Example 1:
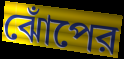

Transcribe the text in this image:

ঝোঁপের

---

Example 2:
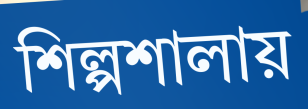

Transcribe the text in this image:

শিল্পশালায়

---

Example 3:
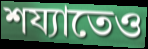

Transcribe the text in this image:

শয্যাতেও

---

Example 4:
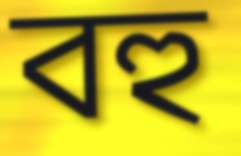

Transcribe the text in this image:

বহু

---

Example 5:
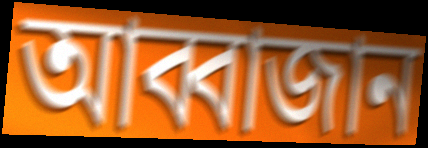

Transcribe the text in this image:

আব্বাজান